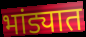
भांड्यात